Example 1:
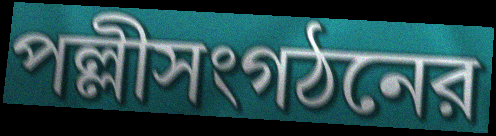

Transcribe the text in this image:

পল্লীসংগঠনের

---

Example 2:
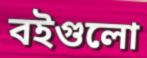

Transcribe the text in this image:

বইগুলো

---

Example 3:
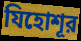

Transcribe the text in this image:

যিহোশূর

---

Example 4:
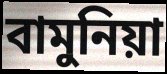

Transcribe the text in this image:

বামুনিয়া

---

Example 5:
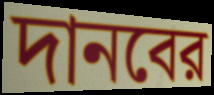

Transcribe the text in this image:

দানবের